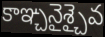
కాఞ్చనైశ్చైవ